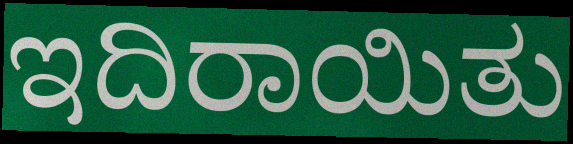
ಇದಿರಾಯಿತು